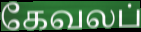
கேவலப்